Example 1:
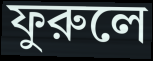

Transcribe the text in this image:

ফুরুলে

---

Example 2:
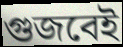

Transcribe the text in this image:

গুজবেই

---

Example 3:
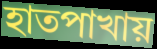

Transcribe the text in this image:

হাতপাখায়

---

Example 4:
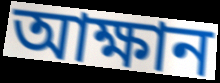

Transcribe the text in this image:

আক্ষান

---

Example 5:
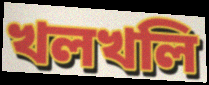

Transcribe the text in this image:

খলখলি